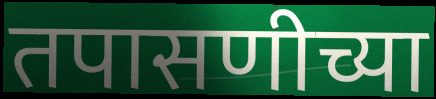
तपासणीच्या